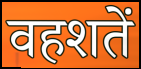
वहशतें